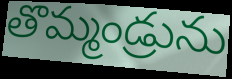
తొమ్మండ్రును